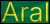
Aral